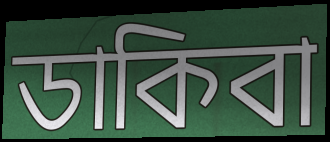
ডাকিবা